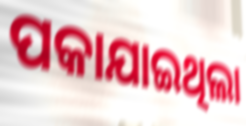
ପକାଯାଇଥିଲା